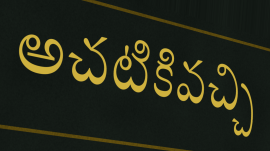
అచటికివచ్చి